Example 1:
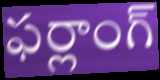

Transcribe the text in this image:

ఫర్లాంగ్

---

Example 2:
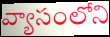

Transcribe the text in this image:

వ్యాసంలోని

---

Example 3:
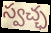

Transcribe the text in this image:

స్వచ్ఛ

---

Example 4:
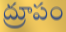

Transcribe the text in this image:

ద్రూపం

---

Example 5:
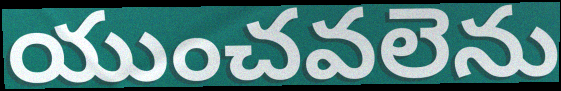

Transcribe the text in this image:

యుంచవలెను